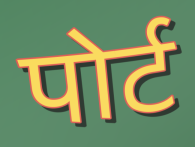
पोर्ट